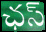
ఛస్